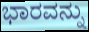
ಭಾರವನ್ನು